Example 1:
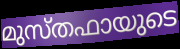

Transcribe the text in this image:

മുസ്തഫായുടെ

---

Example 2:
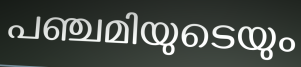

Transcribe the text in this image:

പഞ്ചമിയുടെയും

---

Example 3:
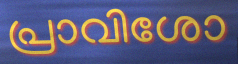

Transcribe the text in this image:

പ്രാവിശോ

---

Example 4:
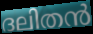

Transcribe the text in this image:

ദലിതൻ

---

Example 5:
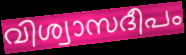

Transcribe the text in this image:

വിശ്വാസദീപം